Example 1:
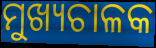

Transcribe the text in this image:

ମୁଖ୍ୟଚାଳକ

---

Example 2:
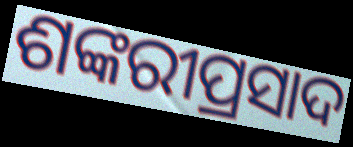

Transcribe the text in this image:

ଶଙ୍କରୀପ୍ରସାଦ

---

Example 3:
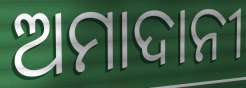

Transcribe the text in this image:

ଅମାଦାନୀ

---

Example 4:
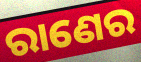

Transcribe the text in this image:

ରାଣେର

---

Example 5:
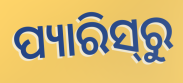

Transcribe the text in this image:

ପ୍ୟାରିସ୍‌ରୁ